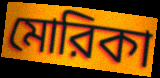
মোরিকা